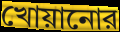
খোয়ানোর